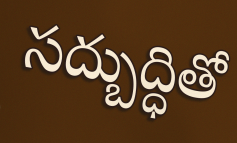
సద్బుద్ధితో